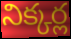
నిక్కర్ల